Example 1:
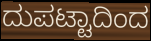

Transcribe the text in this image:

ದುಪಟ್ಟಾದಿಂದ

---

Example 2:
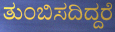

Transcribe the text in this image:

ತುಂಬಿಸದಿದ್ದರೆ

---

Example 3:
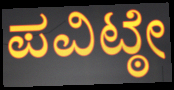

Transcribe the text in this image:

ಪವಿಟ್ಠೇ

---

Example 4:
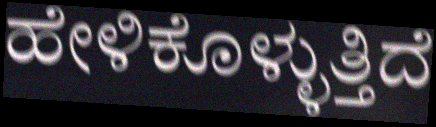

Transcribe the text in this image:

ಹೇಳಿಕೊಳ್ಳುತ್ತಿದೆ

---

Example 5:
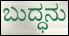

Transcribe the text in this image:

ಬುದ್ಧನು